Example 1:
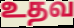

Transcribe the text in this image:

உதவ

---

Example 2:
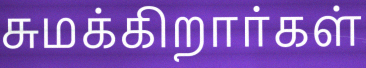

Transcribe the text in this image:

சுமக்கிறார்கள்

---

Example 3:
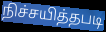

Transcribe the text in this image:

நிச்சயித்தபடி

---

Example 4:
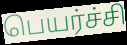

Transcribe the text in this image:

பெயர்ச்சி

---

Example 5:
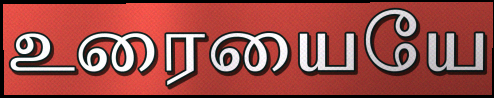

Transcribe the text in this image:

உரையையே